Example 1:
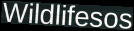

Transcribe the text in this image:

Wildlifesos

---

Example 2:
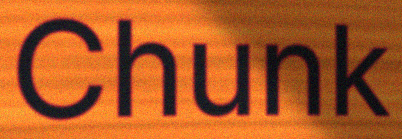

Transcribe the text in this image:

Chunk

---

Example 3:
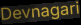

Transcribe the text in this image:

Devnagari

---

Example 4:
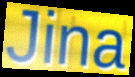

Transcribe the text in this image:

Jina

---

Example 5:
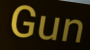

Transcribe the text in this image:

Gun